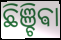
ଛିଞ୍ଚିଵା